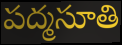
పద్మసూతి